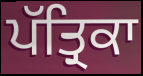
ਪੱਤ੍ਰਿਕਾ